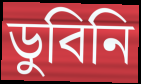
ডুবিনি